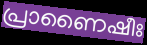
പ്രാണൈഷീഃ